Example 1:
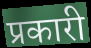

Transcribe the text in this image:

प्रकारी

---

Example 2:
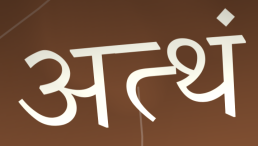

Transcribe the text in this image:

अत्थं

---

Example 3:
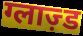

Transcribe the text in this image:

ग्लाज़्ड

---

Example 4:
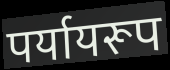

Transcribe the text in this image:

पर्यायरूप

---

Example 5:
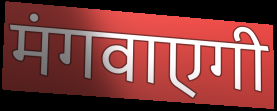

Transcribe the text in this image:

मंगवाएगी